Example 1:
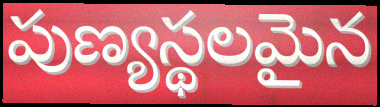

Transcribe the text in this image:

పుణ్యస్థలమైన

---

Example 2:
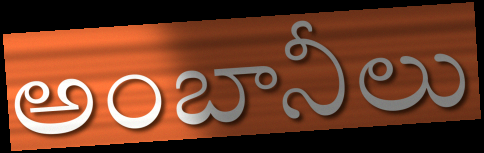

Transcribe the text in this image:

అంబానీలు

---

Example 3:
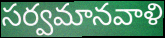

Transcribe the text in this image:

సర్వమానవాళి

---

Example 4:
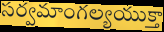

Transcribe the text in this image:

సర్వమాంగల్యయుక్తా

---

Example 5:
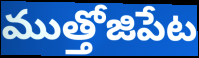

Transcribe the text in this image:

ముత్తోజిపేట